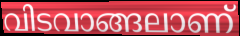
വിടവാങ്ങലാണ്